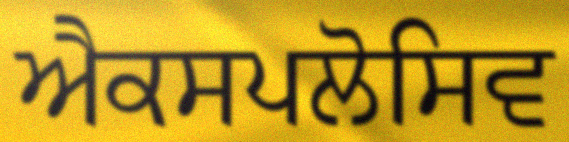
ਐਕਸਪਲੋਸਿਵ